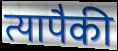
त्यापैकी